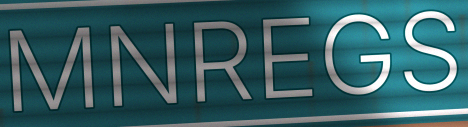
MNREGS